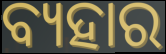
ବ୍ୟହାର